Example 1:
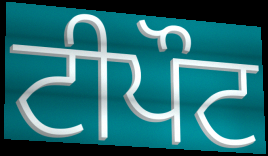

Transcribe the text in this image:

ਟੀਪੌਟ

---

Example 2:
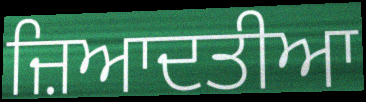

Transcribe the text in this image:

ਜ਼ਿਆਦਤੀਆ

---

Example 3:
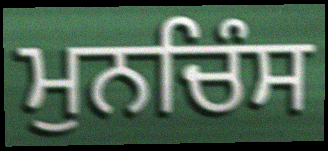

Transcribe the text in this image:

ਮੁਨਚਿੰਸ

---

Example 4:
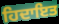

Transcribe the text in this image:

ਹਿਦਾਇਤ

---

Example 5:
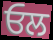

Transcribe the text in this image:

ਓਲ